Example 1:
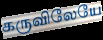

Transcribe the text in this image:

கருவிலேயே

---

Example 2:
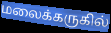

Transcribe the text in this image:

மலைக்கருகில்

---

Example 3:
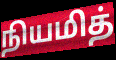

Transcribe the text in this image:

நியமித்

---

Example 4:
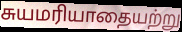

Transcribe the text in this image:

சுயமரியாதையற்று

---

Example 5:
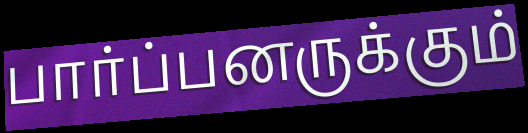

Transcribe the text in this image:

பார்ப்பனருக்கும்